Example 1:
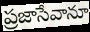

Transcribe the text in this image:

ప్రజాసేవానూ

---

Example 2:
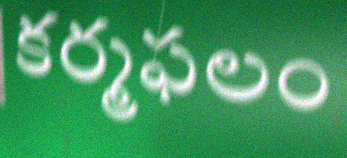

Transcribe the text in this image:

కర్మఫలం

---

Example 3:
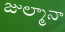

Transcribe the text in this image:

జుల్మానా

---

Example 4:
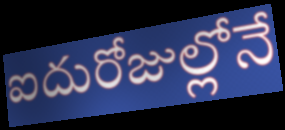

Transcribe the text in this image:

ఐదురోజుల్లోనే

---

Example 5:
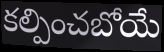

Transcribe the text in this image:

కల్పించబోయే